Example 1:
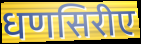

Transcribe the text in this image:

धणसिरीए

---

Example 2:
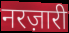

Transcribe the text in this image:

नरज़ारी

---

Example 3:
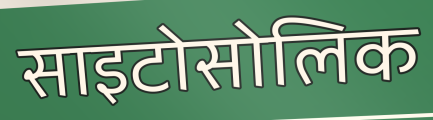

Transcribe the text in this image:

साइटोसोलिक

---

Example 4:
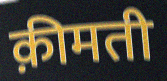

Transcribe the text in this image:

क़ीमती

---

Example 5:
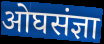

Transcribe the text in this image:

ओघसंज्ञा